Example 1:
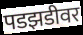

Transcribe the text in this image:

पडझडीवर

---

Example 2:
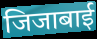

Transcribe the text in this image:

जिजाबाई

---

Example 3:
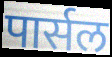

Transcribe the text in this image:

पार्सल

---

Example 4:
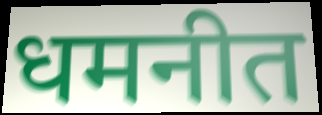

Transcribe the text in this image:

धमनीत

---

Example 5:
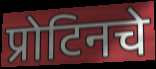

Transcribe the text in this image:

प्रोटिनचे